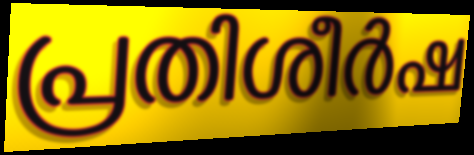
പ്രതിശീർഷ